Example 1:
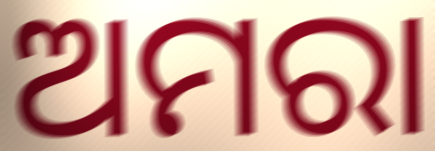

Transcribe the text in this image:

ଅମରା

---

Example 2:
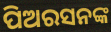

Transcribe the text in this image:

ପିଅରସନଙ୍କ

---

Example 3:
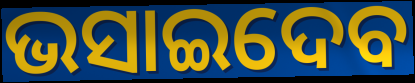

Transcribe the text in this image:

ଭସାଇଦେବ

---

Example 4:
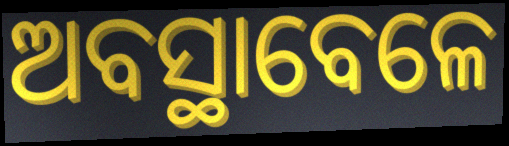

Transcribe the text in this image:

ଅବସ୍ଥାବେଳେ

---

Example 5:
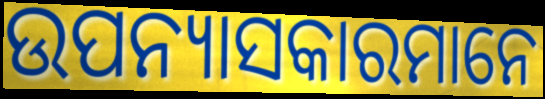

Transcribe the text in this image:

ଉପନ୍ୟାସକାରମାନେ